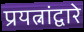
प्रयत्नांद्वारे